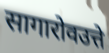
सागारोवउत्ते